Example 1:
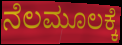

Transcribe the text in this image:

ನೆಲಮೂಲಕ್ಕೆ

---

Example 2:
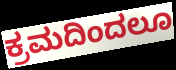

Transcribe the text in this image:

ಕ್ರಮದಿಂದಲೂ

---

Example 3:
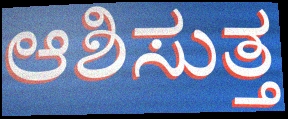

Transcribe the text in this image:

ಆಶಿಸುತ್ತ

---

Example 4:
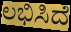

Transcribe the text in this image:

ಲಭಿಸಿದೆ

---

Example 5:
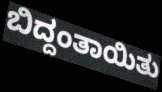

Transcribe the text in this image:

ಬಿದ್ದಂತಾಯಿತು